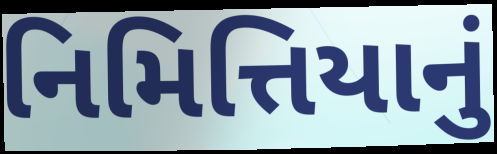
નિમિત્તિયાનું